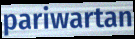
pariwartan